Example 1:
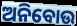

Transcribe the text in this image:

ଅନିବୋଉ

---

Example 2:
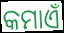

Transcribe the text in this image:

କମାଏଁ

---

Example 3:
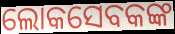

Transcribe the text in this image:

ଲୋକସେବକଙ୍କ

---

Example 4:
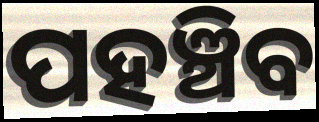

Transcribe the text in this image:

ପହଞ୍ଚିବ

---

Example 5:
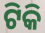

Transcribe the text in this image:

ଟିକି